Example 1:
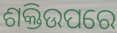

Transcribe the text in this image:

ଶକ୍ତିଉପରେ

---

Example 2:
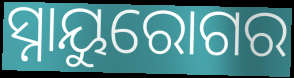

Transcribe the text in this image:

ସ୍ନାୟୁରୋଗର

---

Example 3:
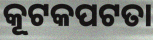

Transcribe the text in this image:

କୂଟକପଟତା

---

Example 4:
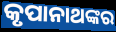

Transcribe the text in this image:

କୃପାନାଥଙ୍କର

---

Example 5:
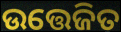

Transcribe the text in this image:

ଉତ୍ତେଜିତ